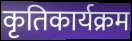
कृतिकार्यक्रम